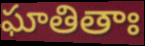
ఘాతితాః